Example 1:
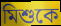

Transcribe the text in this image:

মিশুকে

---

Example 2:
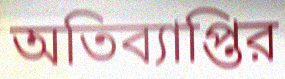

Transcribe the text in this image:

অতিব্যাপ্তির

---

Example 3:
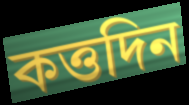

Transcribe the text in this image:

কত্তদিন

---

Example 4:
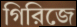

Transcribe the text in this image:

গিরিজে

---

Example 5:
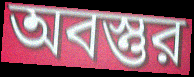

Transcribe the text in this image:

অবস্তুর